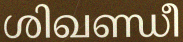
ശിഖണ്ഡീ